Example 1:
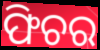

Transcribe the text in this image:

ଫିଚର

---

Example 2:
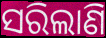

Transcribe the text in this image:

ସରିଲାଣି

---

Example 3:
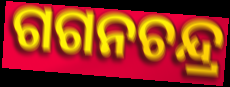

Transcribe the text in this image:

ଗଗନଚନ୍ଦ୍ର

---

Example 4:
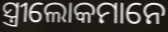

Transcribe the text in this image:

ସ୍ତ୍ରୀଲୋକମାନେ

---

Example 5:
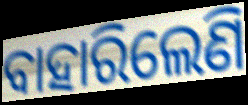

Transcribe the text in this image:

ବାହାରିଲେଣି